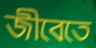
জীবেতে